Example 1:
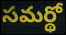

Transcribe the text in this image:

సమర్థో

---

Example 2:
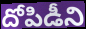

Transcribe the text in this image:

దోపిడీని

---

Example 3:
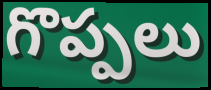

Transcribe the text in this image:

గొప్పలు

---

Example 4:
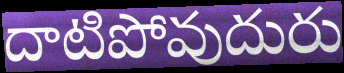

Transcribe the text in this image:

దాటిపోవుదురు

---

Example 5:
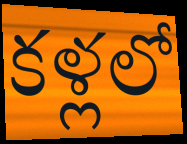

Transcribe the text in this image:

కళ్లలో